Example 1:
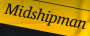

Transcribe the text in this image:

Midshipman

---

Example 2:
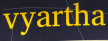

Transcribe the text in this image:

vyartha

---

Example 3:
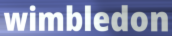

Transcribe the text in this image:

wimbledon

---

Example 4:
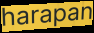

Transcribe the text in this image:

harapan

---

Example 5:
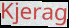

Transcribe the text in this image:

Kjerag